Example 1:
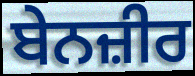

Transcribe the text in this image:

ਬੇਨਜ਼ੀਰ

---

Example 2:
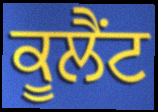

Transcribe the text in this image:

ਕੂਲੈਂਟ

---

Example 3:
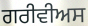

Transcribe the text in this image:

ਗਰੀਵੀਅਸ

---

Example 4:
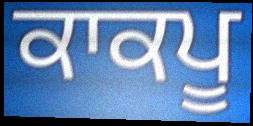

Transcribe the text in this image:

ਕਾਕਪੂ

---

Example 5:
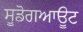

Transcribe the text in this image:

ਸੂਡੋਗਆਊਟ